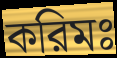
করিমঃ